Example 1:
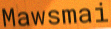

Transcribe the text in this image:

Mawsmai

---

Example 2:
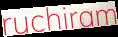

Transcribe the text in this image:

ruchiram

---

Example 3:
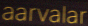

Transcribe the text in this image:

aarvalar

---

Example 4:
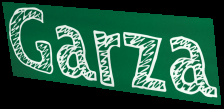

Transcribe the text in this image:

Garza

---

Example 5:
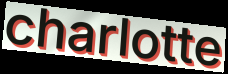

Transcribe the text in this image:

charlotte